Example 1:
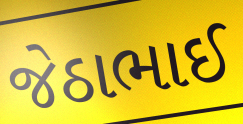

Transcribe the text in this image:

જેઠાભાઈ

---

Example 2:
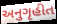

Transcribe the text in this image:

અનુગૃહીત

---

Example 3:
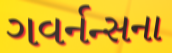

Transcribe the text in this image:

ગવર્નન્સના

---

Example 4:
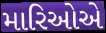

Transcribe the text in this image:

મારિઓએ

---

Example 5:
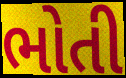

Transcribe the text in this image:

ભોતી